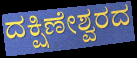
ದಕ್ಷಿಣೇಶ್ವರದ